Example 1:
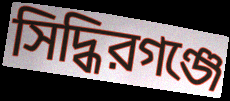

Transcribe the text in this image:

সিদ্ধিরগঞ্জে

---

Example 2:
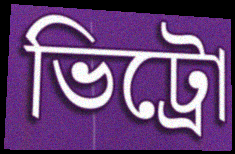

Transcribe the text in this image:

ভিট্রো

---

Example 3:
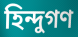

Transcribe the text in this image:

হিন্দুগণ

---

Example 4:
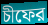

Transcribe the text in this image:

চীফের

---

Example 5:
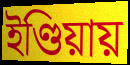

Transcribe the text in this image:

ইণ্ডিয়ায়